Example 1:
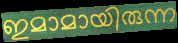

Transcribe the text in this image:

ഇമാമായിരുന്ന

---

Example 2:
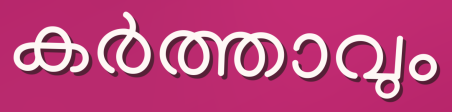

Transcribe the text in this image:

കർത്താവും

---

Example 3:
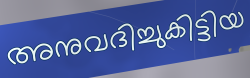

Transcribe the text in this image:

അനുവദിച്ചുകിട്ടിയ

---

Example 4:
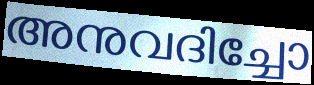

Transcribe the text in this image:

അനുവദിച്ചോ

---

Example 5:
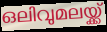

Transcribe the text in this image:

ഒലിവുമലയ്ക്ക്